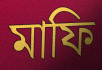
মাফি